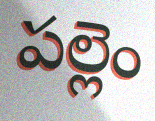
పల్లెం